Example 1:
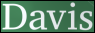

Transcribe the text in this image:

Davis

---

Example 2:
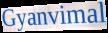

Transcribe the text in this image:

Gyanvimal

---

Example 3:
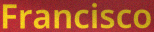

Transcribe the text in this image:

Francisco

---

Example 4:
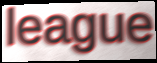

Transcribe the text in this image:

league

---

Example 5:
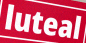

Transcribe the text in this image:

luteal